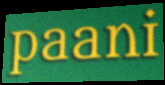
paani